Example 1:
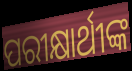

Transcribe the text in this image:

ପରୀକ୍ଷାର୍ଥୀଙ୍କ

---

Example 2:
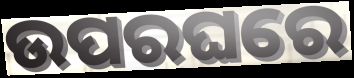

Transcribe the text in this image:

ଉପରଘରେ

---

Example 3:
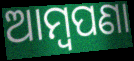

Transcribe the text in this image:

ଆମ୍ବପଣା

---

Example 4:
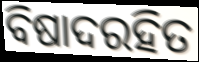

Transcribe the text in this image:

ବିଷାଦରହିତ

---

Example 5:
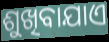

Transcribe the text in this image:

ଶୁଖିବାଯାଏ